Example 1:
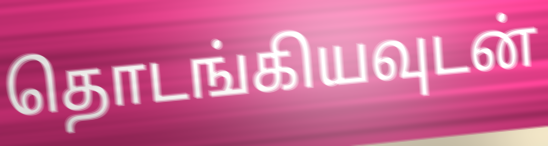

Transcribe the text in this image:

தொடங்கியவுடன்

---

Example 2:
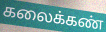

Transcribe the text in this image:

கலைக்கண்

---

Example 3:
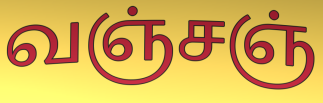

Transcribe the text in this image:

வஞ்சஞ்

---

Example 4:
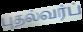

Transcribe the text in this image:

புதல்வர்ப்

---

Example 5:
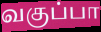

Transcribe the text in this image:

வகுப்பா